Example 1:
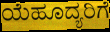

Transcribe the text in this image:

ಯೆಹೂದ್ಯರಿಗೆ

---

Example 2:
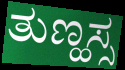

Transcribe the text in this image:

ತುಣ್ಹಸ್ಸ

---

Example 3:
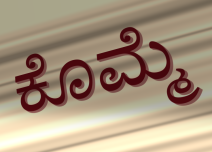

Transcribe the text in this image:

ಕೊಮ್ಮೆ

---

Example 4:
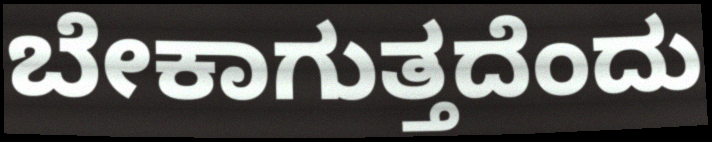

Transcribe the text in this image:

ಬೇಕಾಗುತ್ತದೆಂದು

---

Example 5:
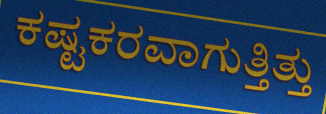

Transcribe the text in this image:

ಕಷ್ಟಕರವಾಗುತ್ತಿತ್ತು